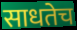
साधतेच